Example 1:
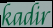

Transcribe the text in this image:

kadir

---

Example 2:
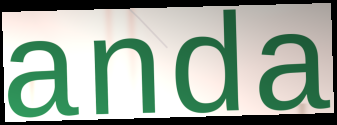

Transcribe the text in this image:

anda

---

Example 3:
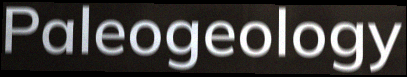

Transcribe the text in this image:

Paleogeology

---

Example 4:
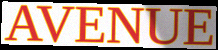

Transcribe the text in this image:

AVENUE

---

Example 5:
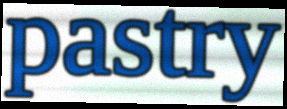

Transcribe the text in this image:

pastry